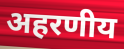
अहरणीय